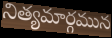
నిత్యమార్గమున